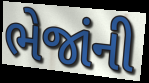
ભેજાંની